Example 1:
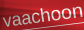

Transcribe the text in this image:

vaachoon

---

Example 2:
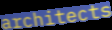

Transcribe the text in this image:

architects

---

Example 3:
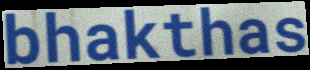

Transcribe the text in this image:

bhakthas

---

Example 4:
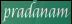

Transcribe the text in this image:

pradanam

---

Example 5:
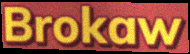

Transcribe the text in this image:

Brokaw